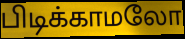
பிடிக்காமலோ